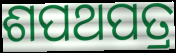
ଶପଥପତ୍ର